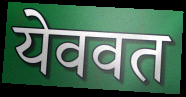
येववत